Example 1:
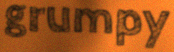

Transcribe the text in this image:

grumpy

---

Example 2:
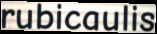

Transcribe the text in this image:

rubicaulis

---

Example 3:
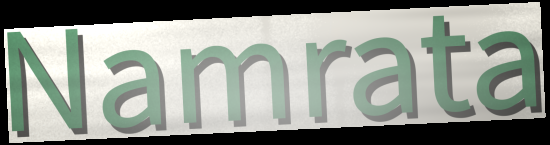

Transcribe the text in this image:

Namrata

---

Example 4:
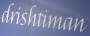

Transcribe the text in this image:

drishtiman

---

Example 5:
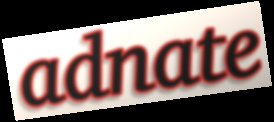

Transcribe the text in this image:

adnate